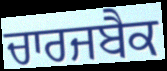
ਚਾਰਜਬੈਕ